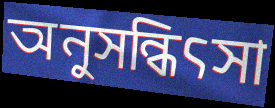
অনুসন্ধিৎসা